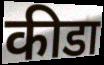
कीडा